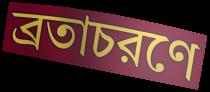
ব্রতাচরণে